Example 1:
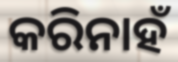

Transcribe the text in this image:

କରିନାହଁ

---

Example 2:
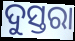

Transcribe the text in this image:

ଦୁସ୍ତରା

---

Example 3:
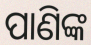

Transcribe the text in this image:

ପାଣିଙ୍କ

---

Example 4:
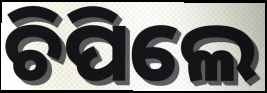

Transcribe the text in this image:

ଚିପିଲେ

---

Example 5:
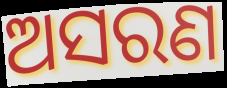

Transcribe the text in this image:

ଅସରଣ